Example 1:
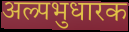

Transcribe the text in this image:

अल्पभुधारक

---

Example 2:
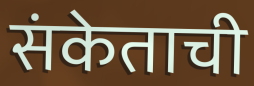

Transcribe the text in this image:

संकेताची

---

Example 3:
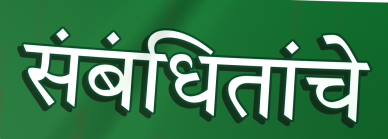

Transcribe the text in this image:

संबंधितांचे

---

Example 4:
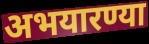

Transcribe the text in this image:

अभयारण्या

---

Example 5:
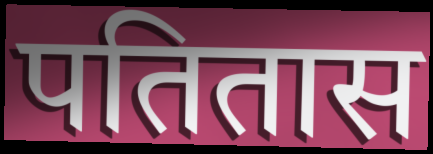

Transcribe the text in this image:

पतितास